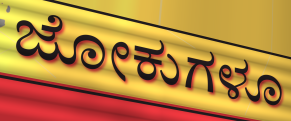
ಜೋಕುಗಳೂ